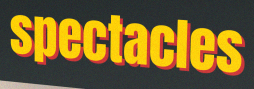
spectacles